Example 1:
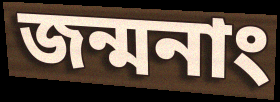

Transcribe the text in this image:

জন্মনাং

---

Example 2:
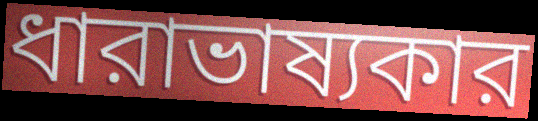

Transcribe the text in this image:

ধারাভাষ্যকার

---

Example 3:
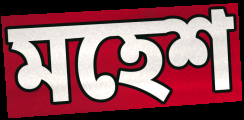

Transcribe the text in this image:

মহেশ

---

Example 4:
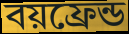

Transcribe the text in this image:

বয়ফ্রেন্ড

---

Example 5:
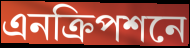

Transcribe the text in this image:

এনক্রিপশনে